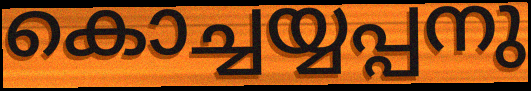
കൊച്ചയ്യപ്പനു